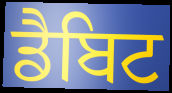
ਡੈਬਿਟ